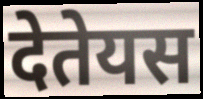
देतेयस